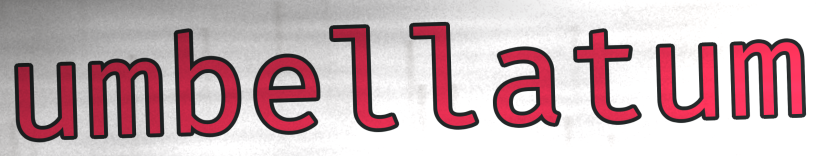
umbellatum